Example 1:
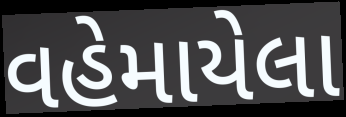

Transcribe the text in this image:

વહેમાયેલા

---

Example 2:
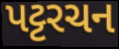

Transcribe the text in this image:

પટ્ટરચન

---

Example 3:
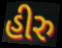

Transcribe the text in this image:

હીરુ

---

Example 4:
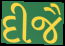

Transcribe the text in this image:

દીજૈ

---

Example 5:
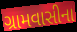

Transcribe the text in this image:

ગ્રામવાસીના